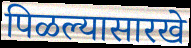
पिळल्यासारखे